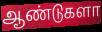
ஆண்டுகளா